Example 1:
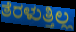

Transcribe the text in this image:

ತೆರಳುತ್ತಿಲ್ಲ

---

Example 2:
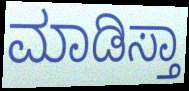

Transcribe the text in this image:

ಮಾಡಿಸ್ತಾ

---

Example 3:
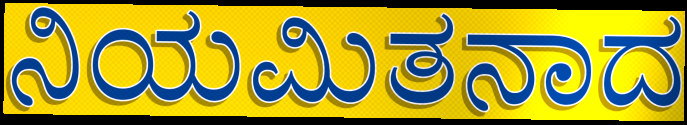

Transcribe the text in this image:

ನಿಯಮಿತನಾದ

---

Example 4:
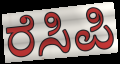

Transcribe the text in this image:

ರೆಸಿಪಿ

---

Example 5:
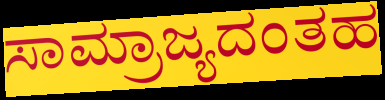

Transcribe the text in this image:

ಸಾಮ್ರಾಜ್ಯದಂತಹ